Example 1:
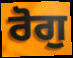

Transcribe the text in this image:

ਰੋਗੁ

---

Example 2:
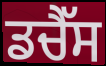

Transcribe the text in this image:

ਡਚੈੱਸ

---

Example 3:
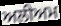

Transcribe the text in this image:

ਅਲੀਅਮ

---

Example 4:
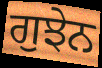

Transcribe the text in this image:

ਗੁਝੇਨ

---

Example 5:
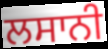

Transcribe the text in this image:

ਲਸਾਨੀ